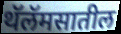
थॅलॅमसातील